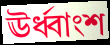
ঊর্ধ্বাংশ